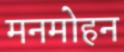
मनमोहन